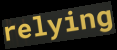
relying